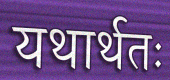
यथार्थतः